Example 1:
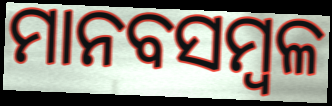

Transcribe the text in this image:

ମାନବସମ୍ବଳ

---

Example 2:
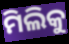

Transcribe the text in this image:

ମିଲିକୁ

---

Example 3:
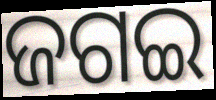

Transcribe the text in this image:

ଜଗଇ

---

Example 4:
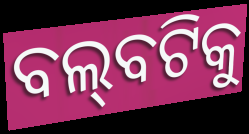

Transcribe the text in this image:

ବଲ୍‌ବଟିକୁ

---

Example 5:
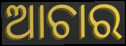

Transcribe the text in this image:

ଆଚାର